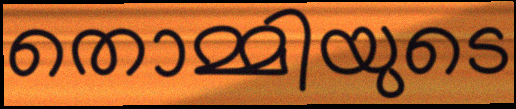
തൊമ്മിയുടെ